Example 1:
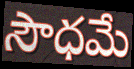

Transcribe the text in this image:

సౌధమే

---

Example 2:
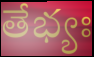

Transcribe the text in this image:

తేభ్యః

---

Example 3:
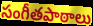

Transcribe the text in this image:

సంగీతపాఠాలు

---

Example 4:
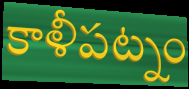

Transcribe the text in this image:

కాళీపట్నం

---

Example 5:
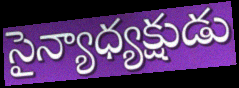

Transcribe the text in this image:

సైన్యాధ్యక్షుడు